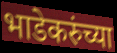
भाडेकरुंच्या